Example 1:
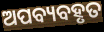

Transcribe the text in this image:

ଅପବ୍ୟବହୃତ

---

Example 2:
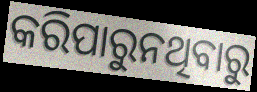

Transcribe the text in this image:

କରିପାରୁନଥିବାରୁ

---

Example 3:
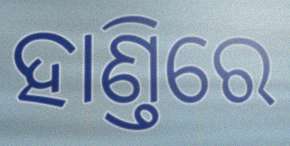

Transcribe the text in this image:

ହାଣ୍ତିରେ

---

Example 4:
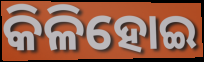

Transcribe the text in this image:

କିଳିହୋଇ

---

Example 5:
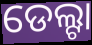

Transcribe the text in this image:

ଡେଲ୍ଟା